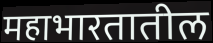
महाभारतातील